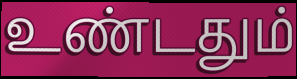
உண்டதும்